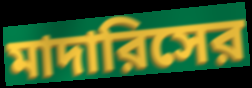
মাদারিসের